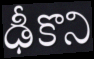
ఢీకొని